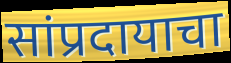
सांप्रदायाचा